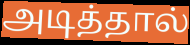
அடித்தால்